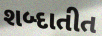
શબ્દાતીત